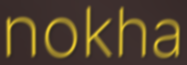
nokha